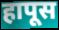
हापूस